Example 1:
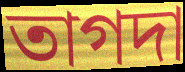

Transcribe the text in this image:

তাগদা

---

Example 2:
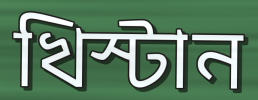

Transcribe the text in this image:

খিস্টান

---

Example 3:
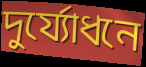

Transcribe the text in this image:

দুর্য্যোধনে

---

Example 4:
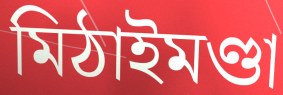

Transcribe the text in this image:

মিঠাইমণ্ডা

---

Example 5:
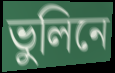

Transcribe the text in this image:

ভুলিনে